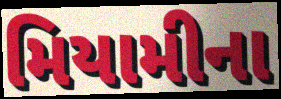
મિયામીના